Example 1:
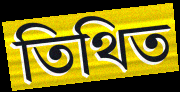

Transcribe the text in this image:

তিথিত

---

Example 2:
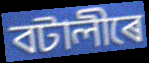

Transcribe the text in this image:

বটালীৰে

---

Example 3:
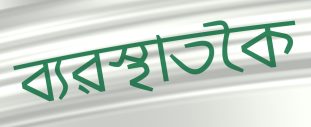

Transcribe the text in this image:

ব্যৱস্থাতকৈ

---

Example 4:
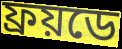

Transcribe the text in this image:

ফ্ৰয়ডে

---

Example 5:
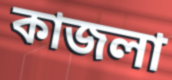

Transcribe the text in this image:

কাজলা